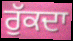
ਰੁੱਕਦਾ